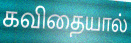
கவிதையால்